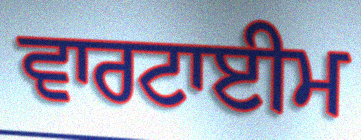
ਵਾਰਟਾਈਮ